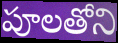
పూలతోని